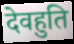
देवहुति